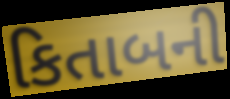
કિતાબની